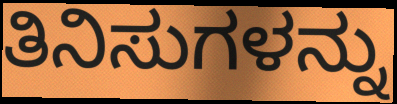
ತಿನಿಸುಗಳನ್ನು